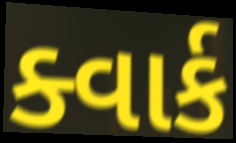
ક્વાર્ક